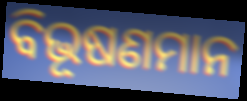
ବିଭୂଷଣମାନ